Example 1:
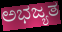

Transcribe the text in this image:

ಅಭಜ್ಯತ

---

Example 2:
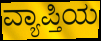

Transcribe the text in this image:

ವ್ಯಾಪ್ತಿಯ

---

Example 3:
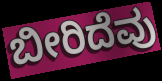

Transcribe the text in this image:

ಬೀರಿದೆವು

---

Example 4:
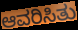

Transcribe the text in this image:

ಆವರಿಸಿತು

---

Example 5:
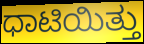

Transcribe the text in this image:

ಧಾಟಿಯಿತ್ತು